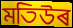
মতিউৰ